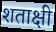
शताक्षी